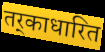
तर्काधारित